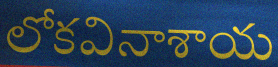
లోకవినాశాయ